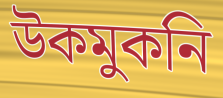
উকমুকনি